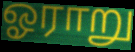
ஓராறு